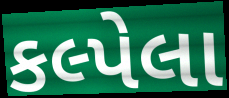
કલ્પેલા